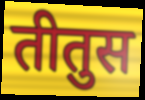
तीतुस